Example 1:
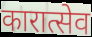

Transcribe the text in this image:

कारात्सेव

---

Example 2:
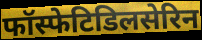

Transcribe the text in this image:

फॉस्फेटिडिलसेरिन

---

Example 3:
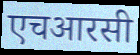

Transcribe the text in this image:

एचआरसी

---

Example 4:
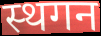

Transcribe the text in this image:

स्थगन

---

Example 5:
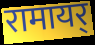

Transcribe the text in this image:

रामायर्